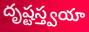
దృష్టస్త్వయా